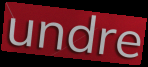
undre